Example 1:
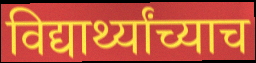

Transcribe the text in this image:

विद्यार्थ्यांच्याच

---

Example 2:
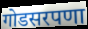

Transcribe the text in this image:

गोडसरपणा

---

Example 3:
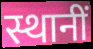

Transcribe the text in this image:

स्थानीं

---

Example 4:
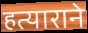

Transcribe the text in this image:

हत्याराने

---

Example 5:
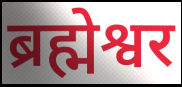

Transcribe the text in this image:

ब्रह्मेश्वर